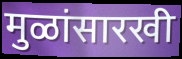
मुळांसारखी